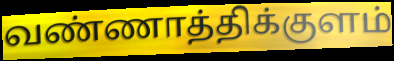
வண்ணாத்திக்குளம்